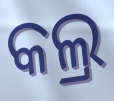
କଲ୍ର